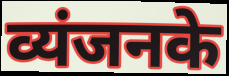
व्यंजनके